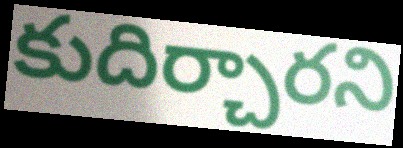
కుదిర్చారని